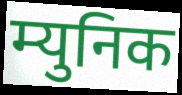
म्युनिक